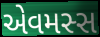
એવમસ્સ